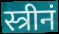
स्त्रीनं